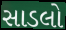
સાડલો